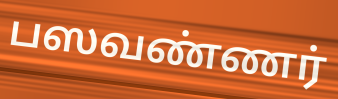
பஸவண்ணர்